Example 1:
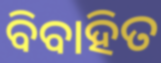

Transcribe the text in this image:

ବିବାହିତ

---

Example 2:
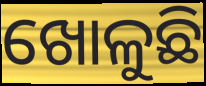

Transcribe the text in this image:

ଖୋଳୁଛି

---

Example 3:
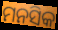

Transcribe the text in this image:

ମନସିକ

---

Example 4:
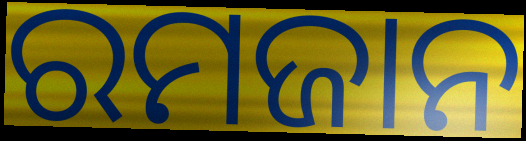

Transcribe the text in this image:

ରମଜାନ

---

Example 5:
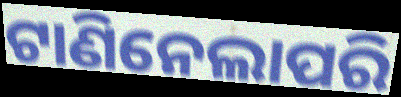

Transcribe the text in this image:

ଟାଣିନେଲାପରି